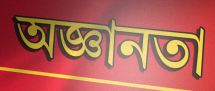
অজ্ঞানতা